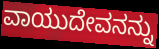
ವಾಯುದೇವನನ್ನು